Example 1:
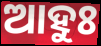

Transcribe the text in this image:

ଆହୁଃ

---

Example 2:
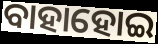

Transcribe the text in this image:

ବାହାହୋଇ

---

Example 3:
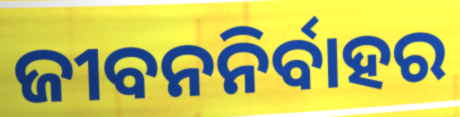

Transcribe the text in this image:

ଜୀବନନିର୍ବାହର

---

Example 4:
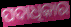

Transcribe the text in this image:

ପଦାଧିକାର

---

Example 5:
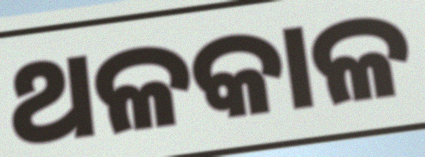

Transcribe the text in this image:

ଥଳକାଳ